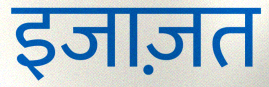
इजाज़त